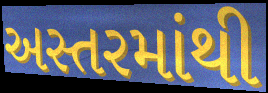
અસ્તરમાંથી